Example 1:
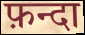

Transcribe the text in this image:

फ़न्दा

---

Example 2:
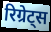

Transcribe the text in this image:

रिग्रेट्स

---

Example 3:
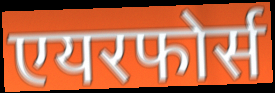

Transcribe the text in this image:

एयरफोर्स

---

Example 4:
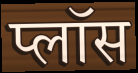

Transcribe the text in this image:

प्लॉस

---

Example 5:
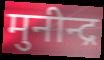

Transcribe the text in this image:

मुनीन्द्र